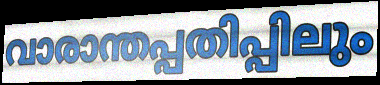
വാരാന്തപ്പതിപ്പിലും